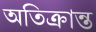
অতিক্ৰান্ত